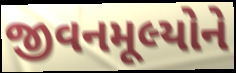
જીવનમૂલ્યોને